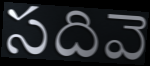
సదివె